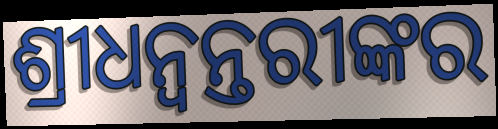
ଶ୍ରୀଧନ୍ୱନ୍ତରୀଙ୍କର